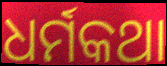
ଧର୍ମକଥା